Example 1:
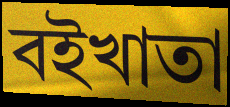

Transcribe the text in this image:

বইখাতা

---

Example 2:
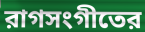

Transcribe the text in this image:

রাগসংগীতের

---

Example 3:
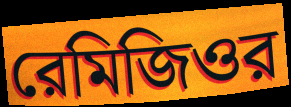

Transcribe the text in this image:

রেমিজিওর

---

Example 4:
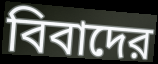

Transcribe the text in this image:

বিবাদের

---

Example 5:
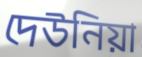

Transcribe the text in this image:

দেউনিয়া